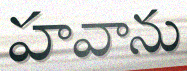
హవాను